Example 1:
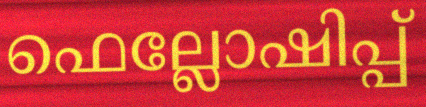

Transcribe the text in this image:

ഫെല്ലോഷിപ്പ്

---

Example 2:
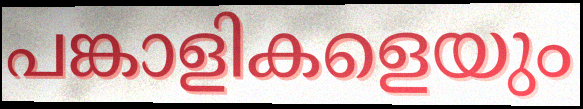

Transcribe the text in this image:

പങ്കാളികളെയും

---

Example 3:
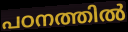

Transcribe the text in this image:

പഠനത്തിൽ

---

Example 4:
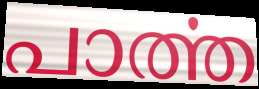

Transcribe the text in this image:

പാൎത്ത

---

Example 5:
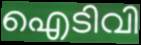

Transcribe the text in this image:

ഐടിവി